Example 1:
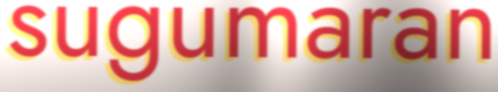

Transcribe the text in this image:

sugumaran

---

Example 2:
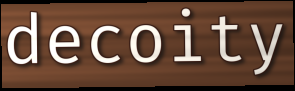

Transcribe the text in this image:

decoity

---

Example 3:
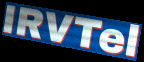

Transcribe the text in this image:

IRVTel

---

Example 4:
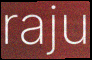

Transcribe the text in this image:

raju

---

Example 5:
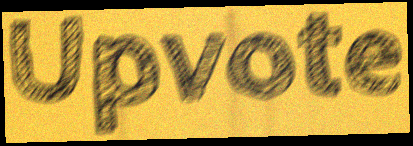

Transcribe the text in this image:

Upvote